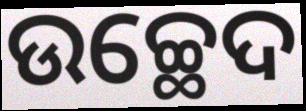
ଉଚ୍ଛେଦ